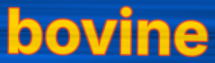
bovine